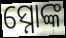
ସ୍ନୋଙ୍କ